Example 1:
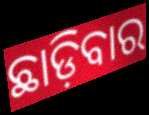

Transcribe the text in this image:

ଛାଡ଼ିବାର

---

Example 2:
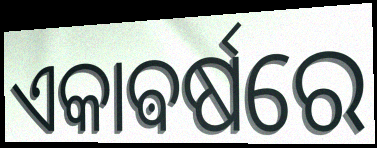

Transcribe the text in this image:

ଏକାଵର୍ଷରେ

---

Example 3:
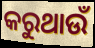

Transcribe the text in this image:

କରୁଥାଉଁ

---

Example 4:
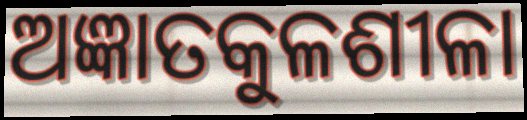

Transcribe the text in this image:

ଅଜ୍ଞାତକୁଳଶୀଳା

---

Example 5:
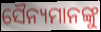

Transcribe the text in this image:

ସୈନ୍ୟମାନଙ୍କୁ